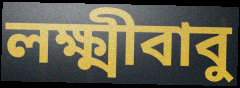
লক্ষ্মীবাবু